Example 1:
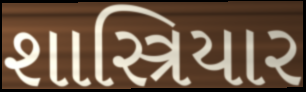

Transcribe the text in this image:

શાસ્ત્રિયાર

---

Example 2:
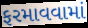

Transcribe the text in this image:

ફરમાવવામાં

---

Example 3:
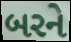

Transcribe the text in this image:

બરને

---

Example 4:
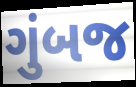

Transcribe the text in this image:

ગુંબજ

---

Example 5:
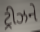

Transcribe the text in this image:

ટ્રીઝને